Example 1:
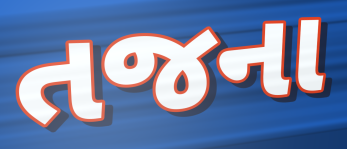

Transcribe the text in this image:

તજના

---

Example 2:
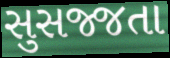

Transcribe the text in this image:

સુસજ્જતા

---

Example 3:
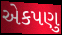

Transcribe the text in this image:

એકપણુ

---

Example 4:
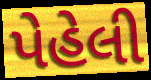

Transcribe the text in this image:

પેહેલી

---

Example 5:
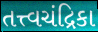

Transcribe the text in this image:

તત્ત્વચંદ્રિકા